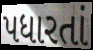
પધારતાં